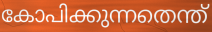
കോപിക്കുന്നതെന്ത്